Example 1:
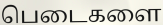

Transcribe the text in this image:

பெடைகளை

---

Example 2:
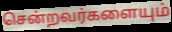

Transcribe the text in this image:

சென்றவர்களையும்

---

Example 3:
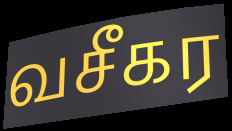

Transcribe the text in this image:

வசீகர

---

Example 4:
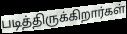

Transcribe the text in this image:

படித்திருக்கிறார்கள்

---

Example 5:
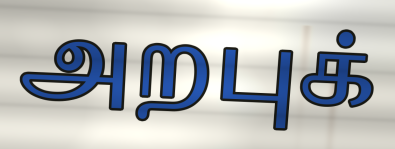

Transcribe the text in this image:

அறபுக்